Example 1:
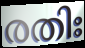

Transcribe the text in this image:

രതിഃ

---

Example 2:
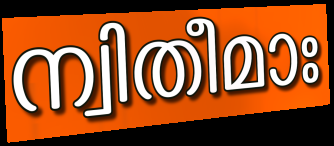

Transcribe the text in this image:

ന്വിതീമാഃ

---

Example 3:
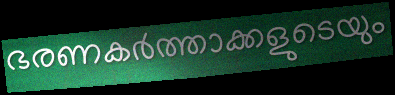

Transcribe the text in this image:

ഭരണകർത്താക്കളുടെയും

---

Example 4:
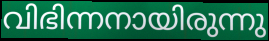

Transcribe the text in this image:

വിഭിന്നനായിരുന്നു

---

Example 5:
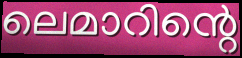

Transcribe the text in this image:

ലെമാറിന്റെ